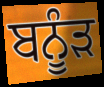
ਬਨੂੰੜ